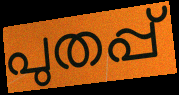
പുതപ്പ്